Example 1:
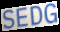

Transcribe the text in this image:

SEDG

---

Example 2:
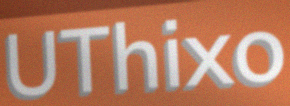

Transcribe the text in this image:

UThixo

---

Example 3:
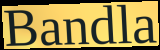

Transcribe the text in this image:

Bandla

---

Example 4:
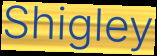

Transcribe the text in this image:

Shigley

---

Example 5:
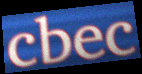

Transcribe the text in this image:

cbec